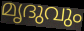
മൃദുവും